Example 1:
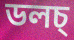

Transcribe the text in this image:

ডলচ্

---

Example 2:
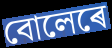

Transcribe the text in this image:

বোলেৰে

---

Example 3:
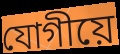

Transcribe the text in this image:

যোগীয়ে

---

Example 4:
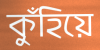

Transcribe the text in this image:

কুঁহিয়ে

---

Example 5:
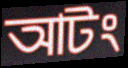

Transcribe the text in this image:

আটং